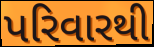
પરિવારથી